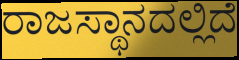
ರಾಜಸ್ಥಾನದಲ್ಲಿದೆ